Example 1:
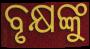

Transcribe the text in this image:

ବୃକ୍ଷଙ୍କୁ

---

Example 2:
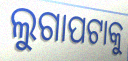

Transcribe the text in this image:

ଲୁଗାପଟାକୁ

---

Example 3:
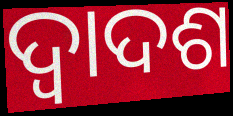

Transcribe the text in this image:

ଦ୍ଵାଦଶ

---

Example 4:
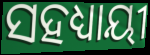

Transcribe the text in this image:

ସହଧ୍ୟାୟୀ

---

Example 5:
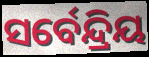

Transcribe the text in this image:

ସର୍ବେନ୍ଦ୍ରିୟ